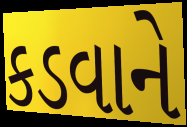
કડવાને